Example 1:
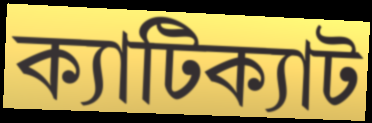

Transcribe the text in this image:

ক্যাটিক্যাট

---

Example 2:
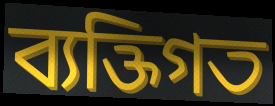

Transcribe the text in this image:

ব্যক্তিগত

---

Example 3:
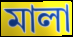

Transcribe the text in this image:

মালা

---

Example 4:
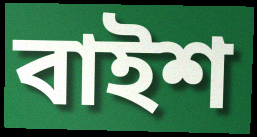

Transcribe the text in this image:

বাইশ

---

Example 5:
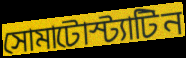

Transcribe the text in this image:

সোমাটোস্ট্যাটিন